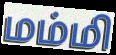
மம்மி